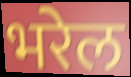
भरेल